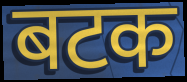
बटक